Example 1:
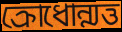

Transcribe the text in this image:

ক্রোধোন্মত্ত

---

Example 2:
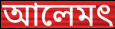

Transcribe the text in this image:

আলেমৎ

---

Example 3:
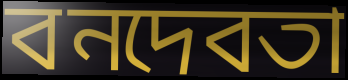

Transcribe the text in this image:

বনদেবতা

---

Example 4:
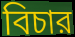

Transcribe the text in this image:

বিচার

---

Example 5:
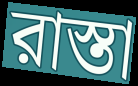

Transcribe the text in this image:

রাস্তা